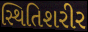
સ્થિતિશરીર